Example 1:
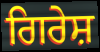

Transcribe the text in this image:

ਗਿਰੇਸ਼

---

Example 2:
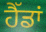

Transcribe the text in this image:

ਹੈੱਡਾਂ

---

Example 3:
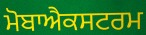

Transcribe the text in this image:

ਮੋਬਾਐਕਸਟਰਮ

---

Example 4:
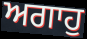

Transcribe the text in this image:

ਅਗਾਹੁ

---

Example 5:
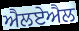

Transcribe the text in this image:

ਐਲਏਐਲ